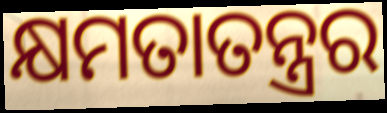
କ୍ଷମତାତନ୍ତ୍ରର